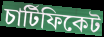
চাৰ্টিফিকেট